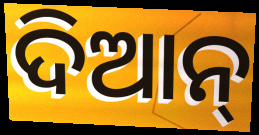
ଦିଆନ୍